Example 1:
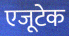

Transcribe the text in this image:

एजूटेक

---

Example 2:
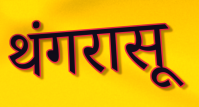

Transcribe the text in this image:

थंगरासू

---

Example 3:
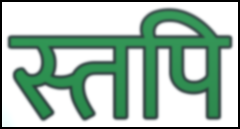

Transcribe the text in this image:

स्‍तपि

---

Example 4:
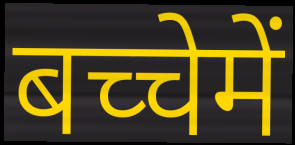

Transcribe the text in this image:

बच्चेमें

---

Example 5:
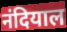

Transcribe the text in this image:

नंदियाल